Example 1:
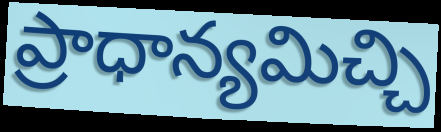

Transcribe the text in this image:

ప్రాధాన్యమిచ్చి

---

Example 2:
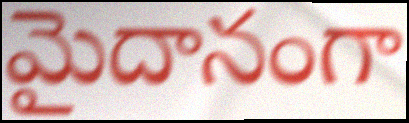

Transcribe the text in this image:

మైదానంగా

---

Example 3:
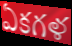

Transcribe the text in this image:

ఏకగళ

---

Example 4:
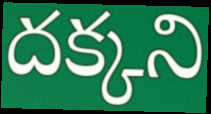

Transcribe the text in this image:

దక్కని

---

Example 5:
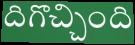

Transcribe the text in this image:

దిగొచ్చింది